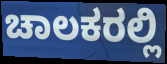
ಚಾಲಕರಲ್ಲಿ